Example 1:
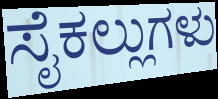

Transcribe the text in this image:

ಸೈಕಲ್ಲುಗಳು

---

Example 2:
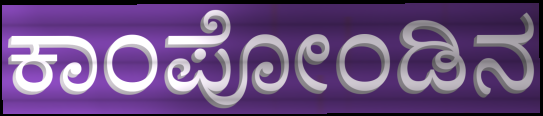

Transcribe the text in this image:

ಕಾಂಪೋಂಡಿನ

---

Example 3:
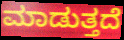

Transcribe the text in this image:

ಮಾಡುತ್ತದೆ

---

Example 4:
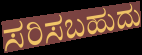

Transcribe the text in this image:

ಸರಿಸಬಹುದು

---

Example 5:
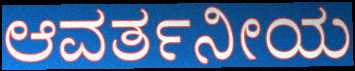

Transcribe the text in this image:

ಆವರ್ತನೀಯ